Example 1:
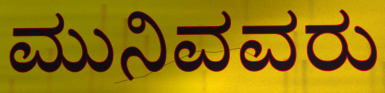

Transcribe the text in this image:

ಮುನಿವವರು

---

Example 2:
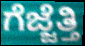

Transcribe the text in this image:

ಗೆಜ್ಜೆತ್ತಿ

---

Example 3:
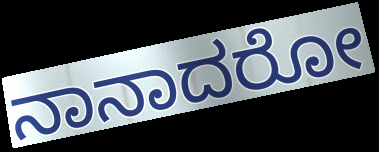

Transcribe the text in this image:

ನಾನಾದರೋ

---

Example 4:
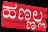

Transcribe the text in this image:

ಹಣ್ಣಲ್ಲ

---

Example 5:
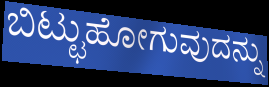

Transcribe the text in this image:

ಬಿಟ್ಟುಹೋಗುವುದನ್ನು